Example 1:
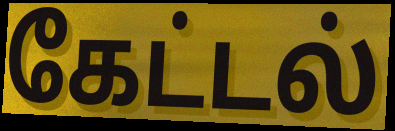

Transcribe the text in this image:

கேட்டல்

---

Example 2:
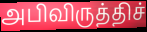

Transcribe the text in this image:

அபிவிருத்திச்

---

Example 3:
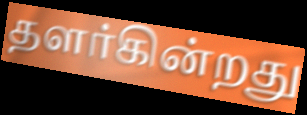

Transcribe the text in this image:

தளர்கின்றது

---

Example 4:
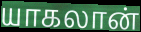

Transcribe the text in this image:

யாகலான்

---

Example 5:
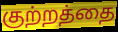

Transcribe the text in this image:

குற்றத்தை